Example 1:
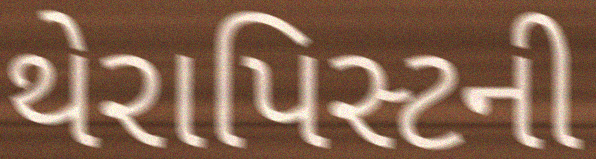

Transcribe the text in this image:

થેરાપિસ્ટની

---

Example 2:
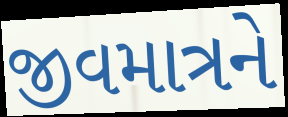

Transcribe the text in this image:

જીવમાત્રને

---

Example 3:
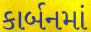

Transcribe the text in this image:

કાર્બનમાં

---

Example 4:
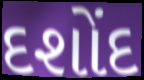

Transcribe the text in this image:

દશોંદ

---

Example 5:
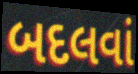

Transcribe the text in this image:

બદલવાં